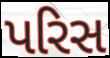
પરિસ